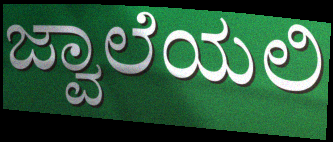
ಜ್ವಾಲೆಯಲಿ